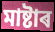
মাষ্টাৰ